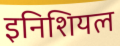
इनिशियल